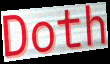
Doth